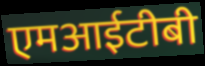
एमआईटीबी